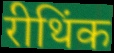
रीथिंक